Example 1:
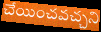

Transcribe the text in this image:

చేయించవచ్చని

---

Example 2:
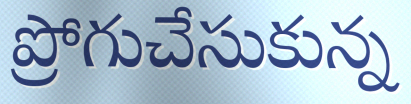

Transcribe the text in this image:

ప్రోగుచేసుకున్న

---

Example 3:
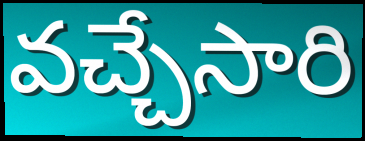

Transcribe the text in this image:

వచ్చేసారి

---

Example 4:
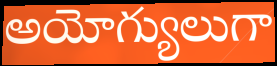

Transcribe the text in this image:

అయోగ్యులుగా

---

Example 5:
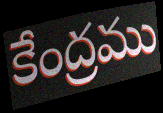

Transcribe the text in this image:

కేంద్రము